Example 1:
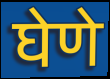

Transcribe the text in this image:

घेणे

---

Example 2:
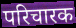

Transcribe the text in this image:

परिचारक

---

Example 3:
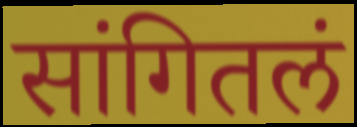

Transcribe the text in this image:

सांगितलं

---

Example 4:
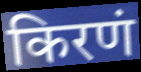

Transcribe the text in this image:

किरणं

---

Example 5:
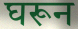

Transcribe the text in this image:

घरून